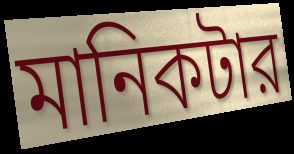
মানিকটার